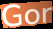
Gor